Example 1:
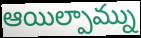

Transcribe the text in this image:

ఆయిల్పామ్ను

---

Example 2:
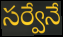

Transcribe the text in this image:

సర్వేనే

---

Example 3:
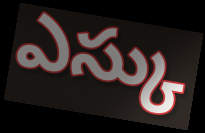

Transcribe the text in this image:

ఎస్కు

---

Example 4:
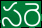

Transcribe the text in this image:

సరె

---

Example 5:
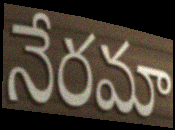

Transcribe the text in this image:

నేరమా